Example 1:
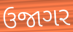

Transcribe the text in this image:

ઉજાગર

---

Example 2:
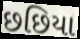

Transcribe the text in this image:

છછિયા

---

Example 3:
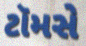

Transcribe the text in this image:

ટૉમસે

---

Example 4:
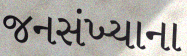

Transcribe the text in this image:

જનસંખ્યાના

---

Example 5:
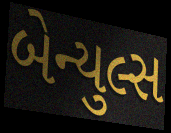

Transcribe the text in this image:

બેન્યુલ્સ